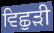
ਵਿਛੁੜੀ